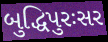
બુદ્ધિપુરઃસર